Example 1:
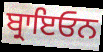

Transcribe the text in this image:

ਬ੍ਰਾਇਓਨ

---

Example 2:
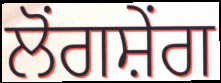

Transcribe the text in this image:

ਲੋਂਗਸ਼ੇਂਗ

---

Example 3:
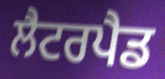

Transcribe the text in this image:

ਲੈਟਰਪੈਡ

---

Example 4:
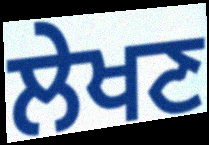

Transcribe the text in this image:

ਲੇਖਣ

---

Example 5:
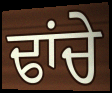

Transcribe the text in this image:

ਢਾਂਚੇ